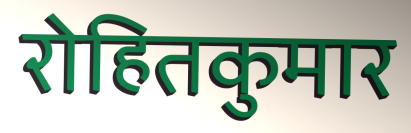
रोहितकुमार